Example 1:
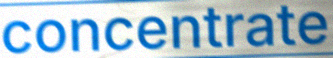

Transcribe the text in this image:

concentrate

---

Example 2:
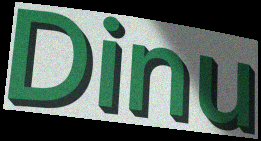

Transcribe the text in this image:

Dinu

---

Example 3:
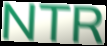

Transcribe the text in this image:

NTR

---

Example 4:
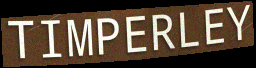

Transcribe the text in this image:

TIMPERLEY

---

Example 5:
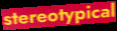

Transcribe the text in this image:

stereotypical